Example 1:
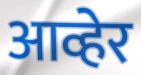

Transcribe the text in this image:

आव्हेर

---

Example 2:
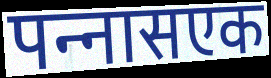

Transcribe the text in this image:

पन्नासएक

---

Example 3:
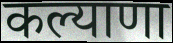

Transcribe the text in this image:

कल्याणा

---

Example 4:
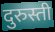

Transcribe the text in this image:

दुरुस्ती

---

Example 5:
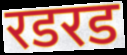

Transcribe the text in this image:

रडरड